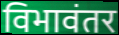
विभावंतर